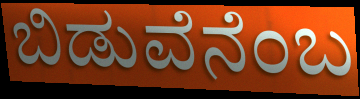
ಬಿಡುವೆನೆಂಬ